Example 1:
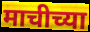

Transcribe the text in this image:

माचीच्या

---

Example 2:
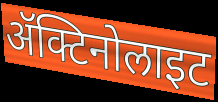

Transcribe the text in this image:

ॲक्टिनोलाइट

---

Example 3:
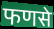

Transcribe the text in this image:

फणसे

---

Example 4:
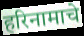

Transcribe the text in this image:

हरिनामाचे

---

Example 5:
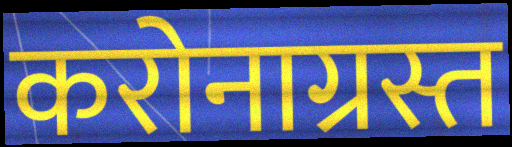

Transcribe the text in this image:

करोनाग्रस्त